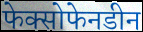
फेक्सोफेनडीन